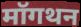
मॉगथन